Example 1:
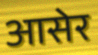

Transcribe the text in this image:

आसेर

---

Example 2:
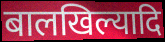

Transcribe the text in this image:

बालखिल्यादि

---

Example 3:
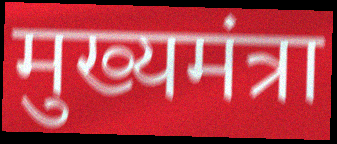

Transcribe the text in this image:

मुख्यमंत्रा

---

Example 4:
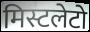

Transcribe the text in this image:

मिस्टलेटो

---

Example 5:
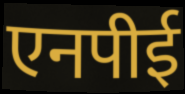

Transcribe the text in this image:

एनपीई